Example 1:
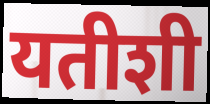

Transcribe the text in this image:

यतीशी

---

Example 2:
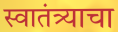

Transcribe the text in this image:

स्‍वातंत्र्याचा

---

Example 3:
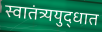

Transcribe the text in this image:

स्वातंत्र्ययुद्धात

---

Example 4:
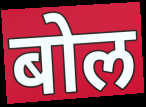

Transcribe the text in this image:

बोल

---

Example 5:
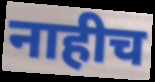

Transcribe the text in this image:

नाहीच